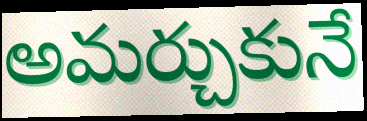
అమర్చుకునే